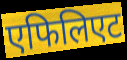
एफिलिएट